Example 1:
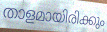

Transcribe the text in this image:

താളമായിരിക്കും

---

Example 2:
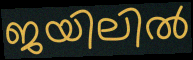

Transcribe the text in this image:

ജയിലിൽ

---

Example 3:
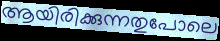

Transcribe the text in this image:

ആയിരിക്കുന്നതുപോലെ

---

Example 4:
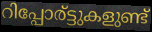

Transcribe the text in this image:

റിപ്പോര്ട്ടുകളുണ്ട്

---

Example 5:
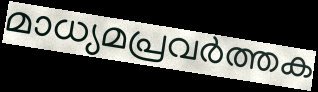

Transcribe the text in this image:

മാധ്യമപ്രവർത്തക